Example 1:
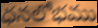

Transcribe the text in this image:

ధనలోభము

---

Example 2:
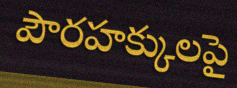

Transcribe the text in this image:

పౌరహక్కులపై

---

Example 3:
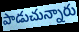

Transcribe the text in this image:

పాడుచున్నారు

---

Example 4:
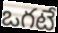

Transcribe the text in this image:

ఒగటే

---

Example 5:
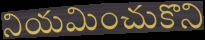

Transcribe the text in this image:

నియమించుకొని